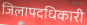
जिलापदधिकारी